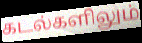
கடல்களிலும்